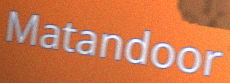
Matandoor